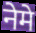
नेमे